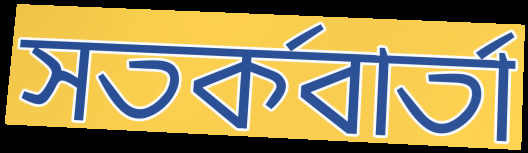
সতর্কবার্তা